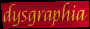
dysgraphia